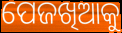
ପେଜଖିଆକୁ